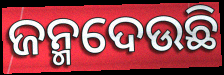
ଜନ୍ମଦେଉଛି